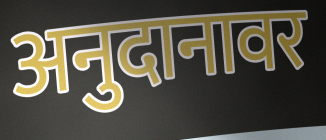
अनुदानावर